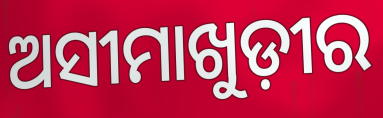
ଅସୀମାଖୁଡ଼ୀର